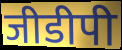
जीडीपी